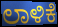
ಲಾಳಿಕೆ